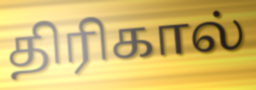
திரிகால்